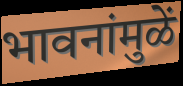
भावनांमुळें